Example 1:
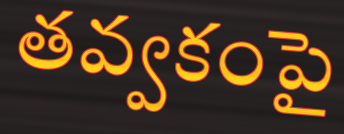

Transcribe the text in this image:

తవ్వకంపై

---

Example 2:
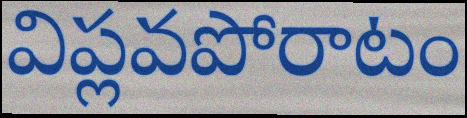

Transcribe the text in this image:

విప్లవపోరాటం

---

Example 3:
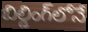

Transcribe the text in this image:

బిల్డింగ్‌లోనే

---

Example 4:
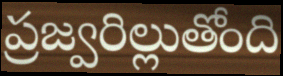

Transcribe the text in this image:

ప్రజ్వరిల్లుతోంది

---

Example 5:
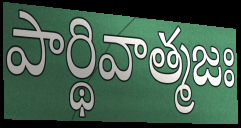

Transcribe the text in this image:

పార్థివాత్మజః